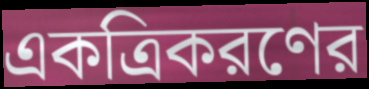
একত্রিকরণের